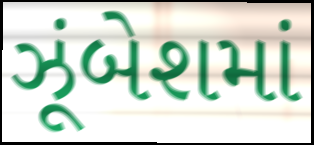
ઝૂંબેશમાં